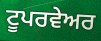
ਟੂਪਰਵੇਅਰ